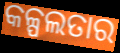
କଳ୍ପଲତାର